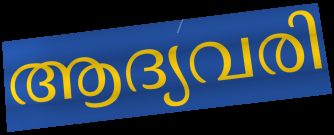
ആദ്യവരി